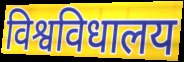
विश्वविधालय